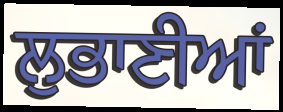
ਲੁਭਾਣੀਆਂ